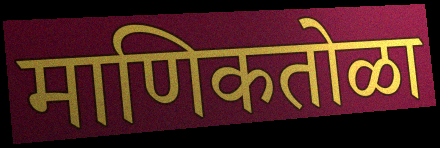
माणिकतोळा